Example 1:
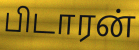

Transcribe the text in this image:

பிடாரன்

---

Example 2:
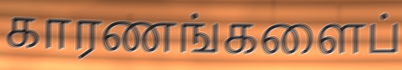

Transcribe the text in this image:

காரணங்களைப்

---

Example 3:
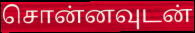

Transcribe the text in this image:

சொன்னவுடன்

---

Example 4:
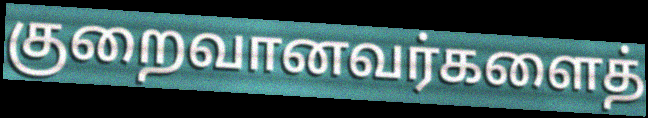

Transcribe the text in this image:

குறைவானவர்களைத்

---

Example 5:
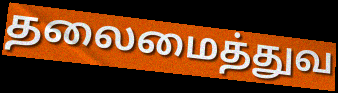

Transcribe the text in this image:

தலைமைத்துவ